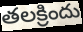
తలక్రిందు